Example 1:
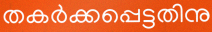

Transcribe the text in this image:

തകർക്കപ്പെട്ടതിനു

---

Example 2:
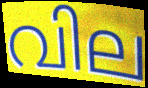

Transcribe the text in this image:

വില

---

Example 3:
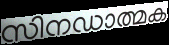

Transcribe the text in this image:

സിനഡാത്മക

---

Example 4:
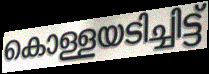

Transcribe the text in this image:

കൊള്ളയടിച്ചിട്ട്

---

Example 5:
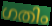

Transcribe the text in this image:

ഗതിം